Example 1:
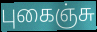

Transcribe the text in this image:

புகைஞ்சு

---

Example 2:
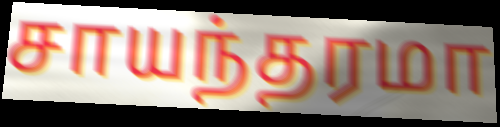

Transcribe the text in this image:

சாயந்தரமா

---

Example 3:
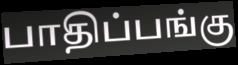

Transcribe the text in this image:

பாதிப்பங்கு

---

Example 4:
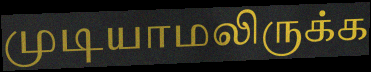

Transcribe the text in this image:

முடியாமலிருக்க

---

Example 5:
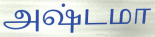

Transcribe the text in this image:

அஷ்டமா